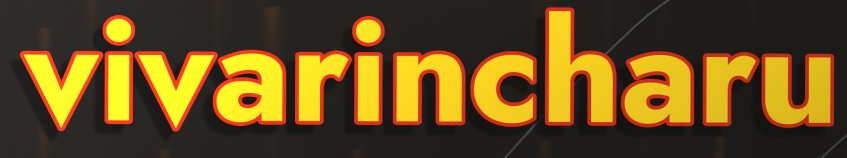
vivarincharu